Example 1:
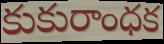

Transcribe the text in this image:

కుకురాంధక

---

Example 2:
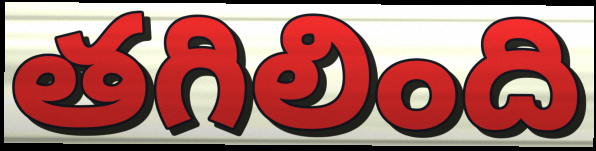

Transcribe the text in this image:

తగిలింది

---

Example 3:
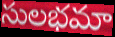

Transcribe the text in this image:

సులభమా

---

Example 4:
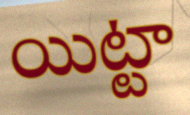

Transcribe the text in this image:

యిట్టా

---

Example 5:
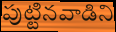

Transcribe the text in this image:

పుట్టినవాడిని